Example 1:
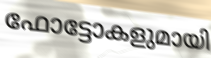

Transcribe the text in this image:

ഫോട്ടോകളുമായി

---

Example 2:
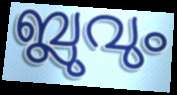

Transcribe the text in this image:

ബ്ലുവും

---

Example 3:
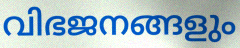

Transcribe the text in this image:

വിഭജനങ്ങളും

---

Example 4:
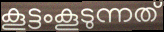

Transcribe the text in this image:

കൂട്ടംകൂടുന്നത്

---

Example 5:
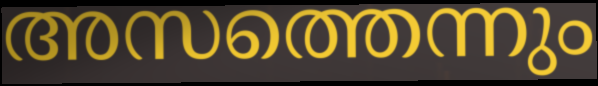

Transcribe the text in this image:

അസത്തെന്നും